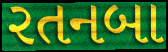
રતનબા